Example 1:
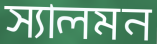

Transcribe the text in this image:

স্যালমন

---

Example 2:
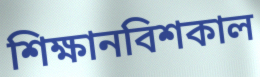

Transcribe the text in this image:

শিক্ষানবিশকাল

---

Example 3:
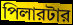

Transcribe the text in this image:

পিলারটার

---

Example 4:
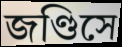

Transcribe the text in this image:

জণ্ডিসে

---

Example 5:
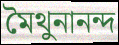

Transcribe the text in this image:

মৈথুনানন্দ